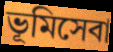
ভূমিসেবা